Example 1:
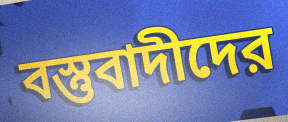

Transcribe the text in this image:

বস্তুবাদীদের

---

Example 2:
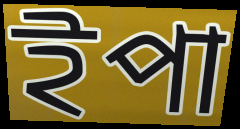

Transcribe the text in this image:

ইপা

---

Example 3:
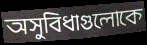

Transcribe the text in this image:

অসুবিধাগুলোকে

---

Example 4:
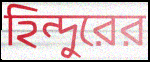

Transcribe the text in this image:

হিন্দুরের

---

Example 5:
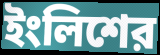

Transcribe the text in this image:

ইংলিশের